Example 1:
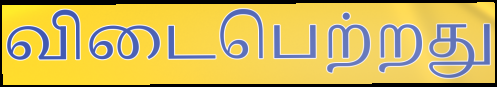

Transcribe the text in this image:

விடைபெற்றது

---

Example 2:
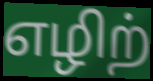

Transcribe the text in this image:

எழிற்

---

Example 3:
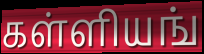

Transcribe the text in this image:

கள்ளியங்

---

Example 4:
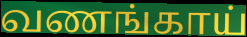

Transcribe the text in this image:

வணங்காய்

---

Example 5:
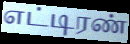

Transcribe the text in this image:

எட்டிரண்